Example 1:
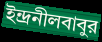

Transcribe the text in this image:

ইন্দ্রনীলবাবুর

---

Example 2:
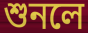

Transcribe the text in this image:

শুনলে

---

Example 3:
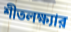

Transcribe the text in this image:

শীতলক্ষ্যার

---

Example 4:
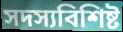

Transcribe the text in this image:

সদস্যবিশিষ্ট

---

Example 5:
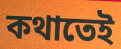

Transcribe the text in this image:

কথাতেই